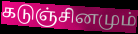
கடுஞ்சினமும்